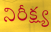
నిరీక్ష్య